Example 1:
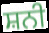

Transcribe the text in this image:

ਸ਼ਨੀ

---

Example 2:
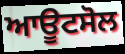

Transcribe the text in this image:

ਆਊਟਸੋਲ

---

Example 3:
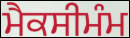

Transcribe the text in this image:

ਮੈਕਸੀਮੰਮ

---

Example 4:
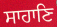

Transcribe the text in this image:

ਸਾਹਾਣਿ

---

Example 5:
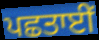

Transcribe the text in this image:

ਪਛਤਾਈਂ